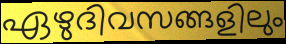
ഏഴുദിവസങ്ങളിലും